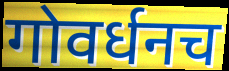
गोवर्धनच